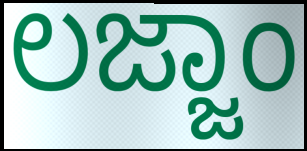
ಲಜ್ಜಾಂ